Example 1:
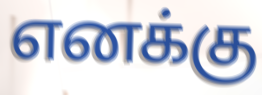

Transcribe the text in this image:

எனக்கு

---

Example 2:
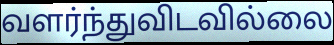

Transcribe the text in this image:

வளர்ந்துவிடவில்லை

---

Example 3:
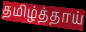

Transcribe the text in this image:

தமிழ்த்தாய்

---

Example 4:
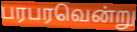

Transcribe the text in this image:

பரபரவென்று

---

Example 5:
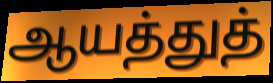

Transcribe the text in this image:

ஆயத்துத்